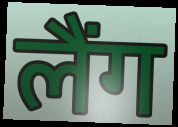
लैंग